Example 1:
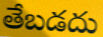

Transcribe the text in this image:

తేబడదు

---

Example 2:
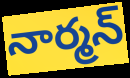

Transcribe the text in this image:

నార్మన్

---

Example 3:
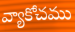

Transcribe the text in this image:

వ్యాకోచము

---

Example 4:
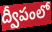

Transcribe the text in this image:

ద్వీపంలో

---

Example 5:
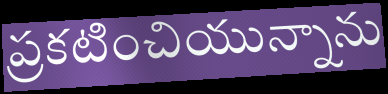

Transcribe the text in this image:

ప్రకటించియున్నాను